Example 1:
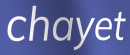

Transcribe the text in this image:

chayet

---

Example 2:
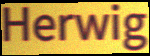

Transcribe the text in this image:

Herwig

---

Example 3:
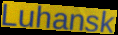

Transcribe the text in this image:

Luhansk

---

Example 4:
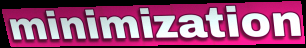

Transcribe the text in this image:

minimization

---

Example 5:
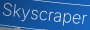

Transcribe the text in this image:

Skyscraper